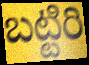
బట్టిరి